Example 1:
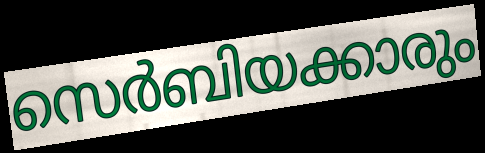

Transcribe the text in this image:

സെർബിയക്കാരും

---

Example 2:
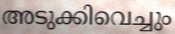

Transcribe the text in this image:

അടുക്കിവെച്ചും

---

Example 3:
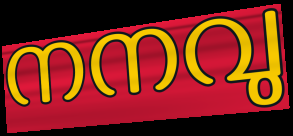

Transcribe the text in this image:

നനവു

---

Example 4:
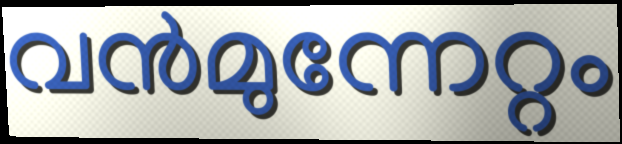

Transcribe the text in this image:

വൻമുന്നേറ്റം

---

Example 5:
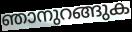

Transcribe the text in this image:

ഞാനുറങ്ങുക